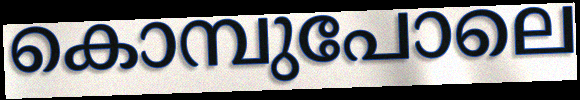
കൊമ്പുപോലെ